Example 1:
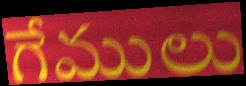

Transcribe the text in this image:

గేములు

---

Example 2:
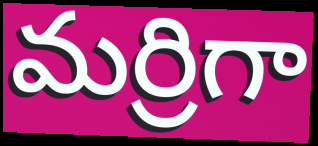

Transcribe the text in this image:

మర్రిగా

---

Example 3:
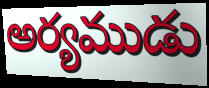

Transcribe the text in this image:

అర్యముడు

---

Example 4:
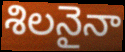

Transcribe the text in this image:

శిలనైనా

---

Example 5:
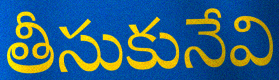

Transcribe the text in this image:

తీసుకునేవి